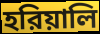
হরিয়ালি